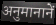
अनुमानानें